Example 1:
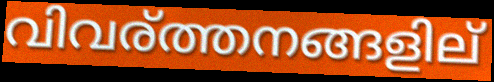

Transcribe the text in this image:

വിവര്ത്തനങ്ങളില്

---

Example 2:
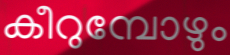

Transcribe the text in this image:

കീറുമ്പോഴും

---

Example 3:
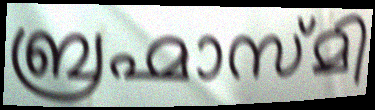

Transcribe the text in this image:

ബ്രഹ്മാസ്മി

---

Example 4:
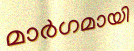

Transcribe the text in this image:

മാർഗമായി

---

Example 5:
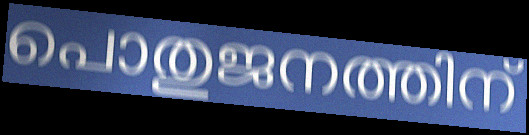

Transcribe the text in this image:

പൊതുജനത്തിന്